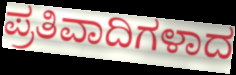
ಪ್ರತಿವಾದಿಗಳಾದ